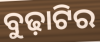
ବୁଢ଼ାଟିର